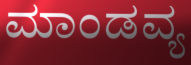
ಮಾಂಡವ್ಯ